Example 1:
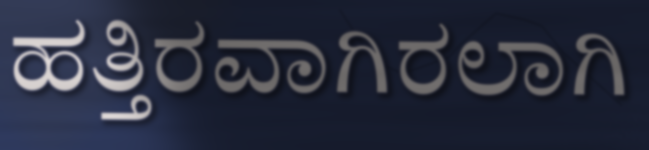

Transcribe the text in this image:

ಹತ್ತಿರವಾಗಿರಲಾಗಿ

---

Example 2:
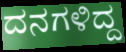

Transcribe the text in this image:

ದನಗಳಿದ್ದ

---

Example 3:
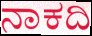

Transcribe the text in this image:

ನಾಕದಿ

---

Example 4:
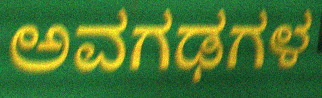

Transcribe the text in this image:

ಅವಗಢಗಳ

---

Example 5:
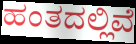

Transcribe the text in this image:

ಹಂತದಲ್ಲಿವೆ